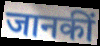
जानकीं